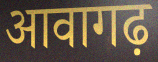
आवागढ़